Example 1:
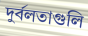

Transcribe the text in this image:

দুর্বলতাগুলি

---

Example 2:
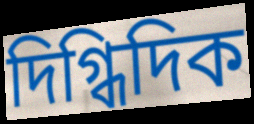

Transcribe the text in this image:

দিগ্ধিদিক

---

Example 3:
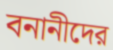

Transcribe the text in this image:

বনানীদের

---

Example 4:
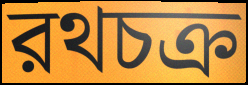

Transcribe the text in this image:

রথচক্র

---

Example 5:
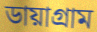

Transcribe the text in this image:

ডায়াগ্রাম